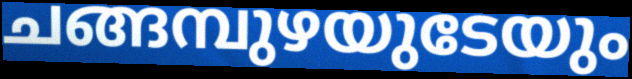
ചങ്ങമ്പുഴയുടേയും